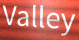
Valley